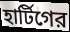
হার্টিগের